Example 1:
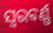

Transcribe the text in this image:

ସ୍ୱରବର୍ଣ୍ଣ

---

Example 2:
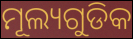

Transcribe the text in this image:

ମୂଲ୍ୟଗୁଡିକ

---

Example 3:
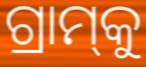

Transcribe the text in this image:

ଗ୍ରାମ୍‌କୁ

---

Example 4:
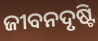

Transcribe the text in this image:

ଜୀବନଦୃଷ୍ଟି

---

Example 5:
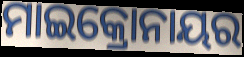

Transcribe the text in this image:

ମାଇକ୍ରୋନାୟର